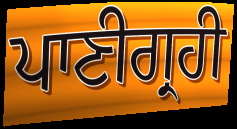
ਪਾਣੀਗ੍ਰਹੀ